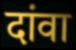
दांवा